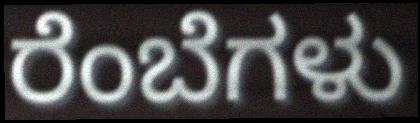
ರೆಂಬೆಗಳು